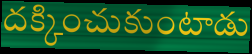
దక్కించుకుంటాడు